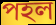
পহল